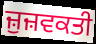
ਜ਼ੁਜ਼ਵਕਤੀ